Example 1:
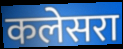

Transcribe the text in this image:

कलेसरा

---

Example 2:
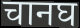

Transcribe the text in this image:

चानघ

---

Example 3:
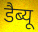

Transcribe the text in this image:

डैब्यू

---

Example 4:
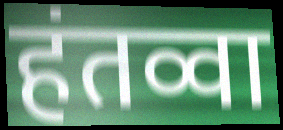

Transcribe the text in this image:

हंतव्वा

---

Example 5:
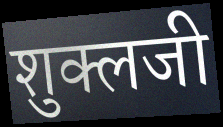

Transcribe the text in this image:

शुक्‍लजी